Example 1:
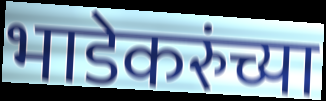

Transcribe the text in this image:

भाडेकरुंच्या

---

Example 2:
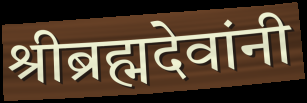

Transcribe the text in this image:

श्रीब्रह्मदेवांनी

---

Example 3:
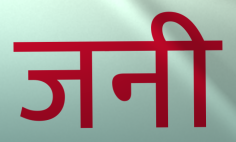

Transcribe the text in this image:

जनी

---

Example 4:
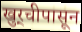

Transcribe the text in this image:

खुर्चीपासून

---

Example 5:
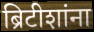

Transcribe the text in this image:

ब्रिटीशांना